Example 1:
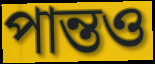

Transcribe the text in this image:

পান্তও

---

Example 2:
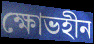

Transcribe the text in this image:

ক্ষোভহীন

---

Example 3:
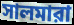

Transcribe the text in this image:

সালমারা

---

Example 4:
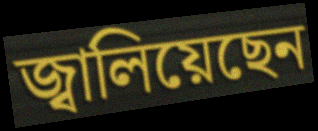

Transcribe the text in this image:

জ্বালিয়েছেন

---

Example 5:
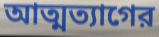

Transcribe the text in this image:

আত্মত্যাগের